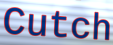
Cutch